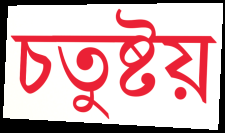
চতুষ্টয়